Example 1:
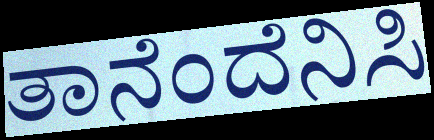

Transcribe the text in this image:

ತಾನೆಂದೆನಿಸಿ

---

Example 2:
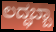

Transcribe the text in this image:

ಲದ್ಧಬ್ಬಾ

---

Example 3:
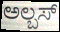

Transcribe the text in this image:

ಅಲ್ಬಸ್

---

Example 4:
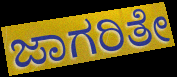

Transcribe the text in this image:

ಜಾಗರಿತೇ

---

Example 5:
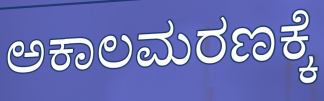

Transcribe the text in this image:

ಅಕಾಲಮರಣಕ್ಕೆ